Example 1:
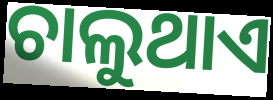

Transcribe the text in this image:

ଚାଲୁଥାଏ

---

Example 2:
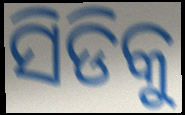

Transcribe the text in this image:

ସିଡିକୁ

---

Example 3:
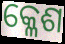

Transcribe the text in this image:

କ୍ଳେଶ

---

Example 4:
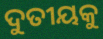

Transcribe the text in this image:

ଦୁତୀୟକୁ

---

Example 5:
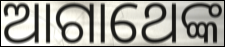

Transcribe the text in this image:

ଆଗାଥେଙ୍କ